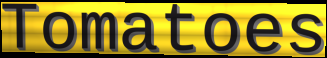
Tomatoes